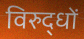
विरुद्धों